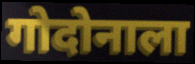
गोदोनाला